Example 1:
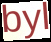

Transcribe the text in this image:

byl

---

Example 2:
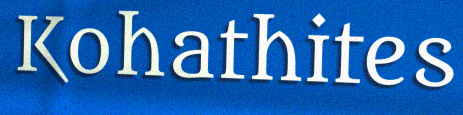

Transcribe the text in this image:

Kohathites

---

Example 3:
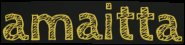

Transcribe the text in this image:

amaitta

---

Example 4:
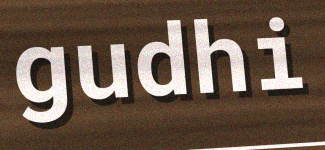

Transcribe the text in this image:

gudhi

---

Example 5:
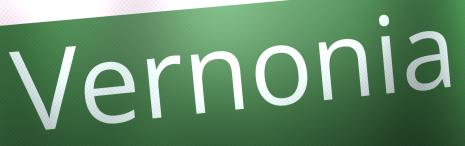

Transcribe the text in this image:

Vernonia